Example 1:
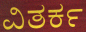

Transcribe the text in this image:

ವಿತರ್ಕ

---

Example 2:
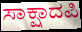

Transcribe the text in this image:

ಸಾಕ್ಷಾದಪಿ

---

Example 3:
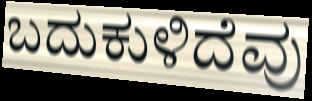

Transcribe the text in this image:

ಬದುಕುಳಿದೆವು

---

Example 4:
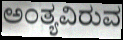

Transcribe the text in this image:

ಅಂತ್ಯವಿರುವ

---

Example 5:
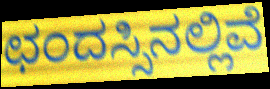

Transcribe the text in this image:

ಛಂದಸ್ಸಿನಲ್ಲಿವೆ